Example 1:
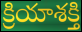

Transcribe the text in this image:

క్రియాశక్తి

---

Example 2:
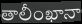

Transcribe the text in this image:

తాలీంఖానా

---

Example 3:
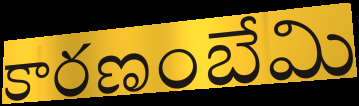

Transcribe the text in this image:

కారణంబేమి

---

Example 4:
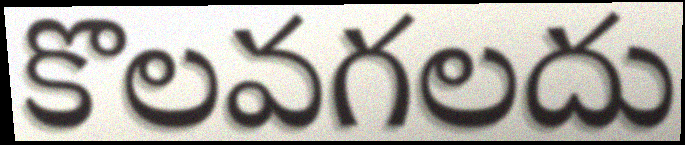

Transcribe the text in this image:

కొలవగలదు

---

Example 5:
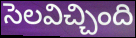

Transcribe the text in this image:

సెలవిచ్చింది